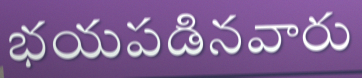
భయపడినవారు